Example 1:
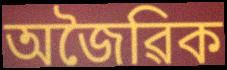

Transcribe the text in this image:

অজৈৱিক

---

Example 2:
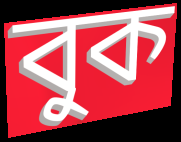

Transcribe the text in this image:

বুক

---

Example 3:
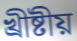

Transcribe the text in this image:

খ্ৰীষ্টীয়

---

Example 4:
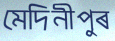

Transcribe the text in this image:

মেদিনীপুৰ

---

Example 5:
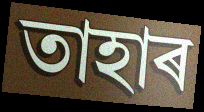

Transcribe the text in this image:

তাহাৰ